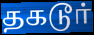
தகடூர்